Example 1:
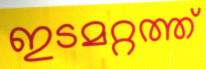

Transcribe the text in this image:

ഇടമറ്റത്ത്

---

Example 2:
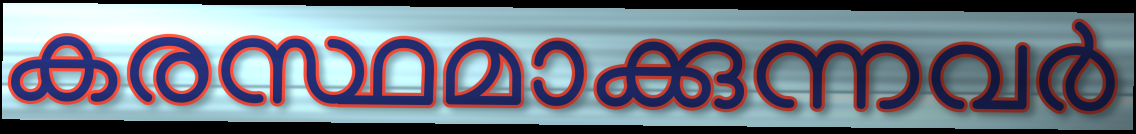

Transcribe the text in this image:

കരസ്ഥമാക്കുന്നവർ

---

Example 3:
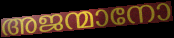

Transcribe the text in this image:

അജന്മാനോ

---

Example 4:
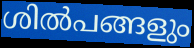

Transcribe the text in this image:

ശിൽപങ്ങളും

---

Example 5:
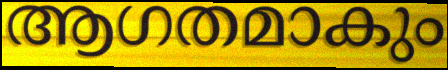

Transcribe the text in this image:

ആഗതമാകും